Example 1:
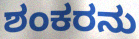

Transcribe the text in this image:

ಶಂಕರನು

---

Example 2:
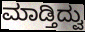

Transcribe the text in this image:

ಮಾಡ್ತಿದ್ವು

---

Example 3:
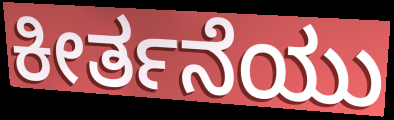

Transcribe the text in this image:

ಕೀರ್ತನೆಯು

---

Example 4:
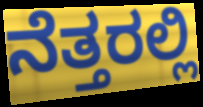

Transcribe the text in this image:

ನೆತ್ತರಲ್ಲಿ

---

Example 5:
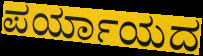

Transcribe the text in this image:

ಪರ್ಯಾಯದ